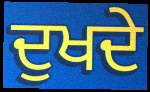
ਦੁਖਦੇ